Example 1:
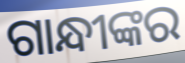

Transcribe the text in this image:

ଗାନ୍ଧୀଙ୍କର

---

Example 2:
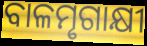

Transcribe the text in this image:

ବାଳମୃଗାକ୍ଷୀ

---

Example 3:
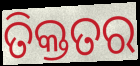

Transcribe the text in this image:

ତିକ୍ତତର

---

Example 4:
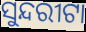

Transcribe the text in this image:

ସୁନ୍ଦରୀଟା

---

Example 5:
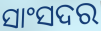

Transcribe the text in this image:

ସାଂସଦର